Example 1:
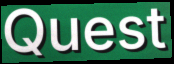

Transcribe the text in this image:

Quest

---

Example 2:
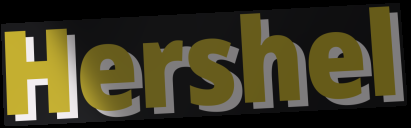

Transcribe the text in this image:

Hershel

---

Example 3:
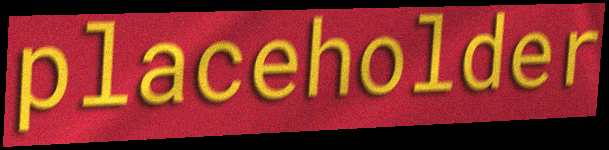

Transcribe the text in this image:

placeholder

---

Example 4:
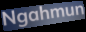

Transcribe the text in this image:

Ngahmun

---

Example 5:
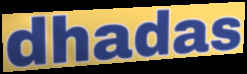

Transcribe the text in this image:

dhadas